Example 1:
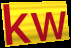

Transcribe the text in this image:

kw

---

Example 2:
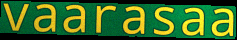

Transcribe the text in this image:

vaarasaa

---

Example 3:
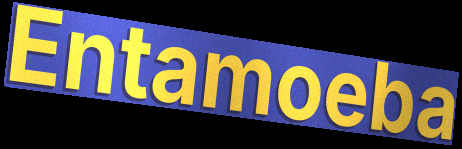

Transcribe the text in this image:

Entamoeba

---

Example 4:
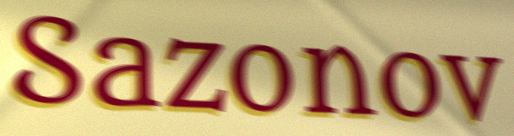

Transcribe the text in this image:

Sazonov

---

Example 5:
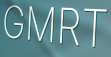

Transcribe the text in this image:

GMRT